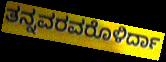
ತನ್ನವರವರೊಳಿರ್ದಾ